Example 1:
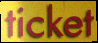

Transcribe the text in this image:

ticket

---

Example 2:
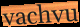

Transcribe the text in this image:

vachvu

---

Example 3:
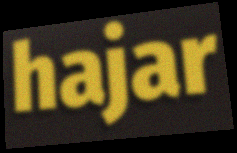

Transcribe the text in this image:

hajar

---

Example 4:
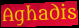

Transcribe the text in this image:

Aghadis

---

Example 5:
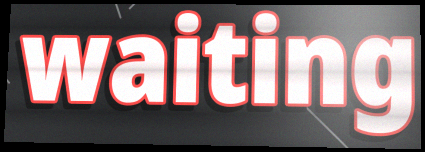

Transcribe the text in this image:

waiting